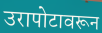
उरापोटावरून